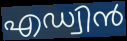
എഡ്വിൻ